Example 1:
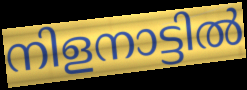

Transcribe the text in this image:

നിളനാട്ടിൽ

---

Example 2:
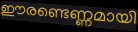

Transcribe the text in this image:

ഈരണ്ടെണ്ണമായി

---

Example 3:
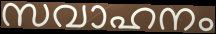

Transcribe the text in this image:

സവാഹനം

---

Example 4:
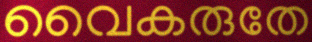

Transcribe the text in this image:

വൈകരുതേ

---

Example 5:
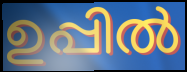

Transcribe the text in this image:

ഉപ്പിൽ